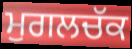
ਮੁਗਲਚੱਕ